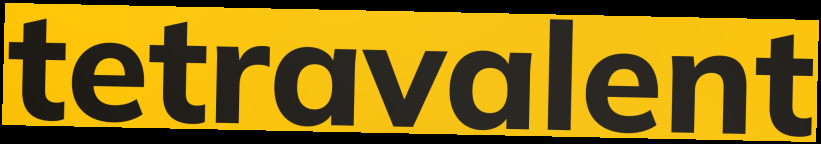
tetravalent